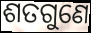
ଶତଗୁଣେ